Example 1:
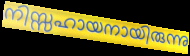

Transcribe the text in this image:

നിസ്സഹായനായിരുന്നു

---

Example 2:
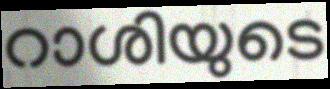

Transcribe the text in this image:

റാശിയുടെ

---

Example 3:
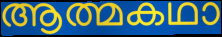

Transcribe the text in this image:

ആത്മകഥാ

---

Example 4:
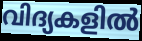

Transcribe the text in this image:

വിദ്യകളിൽ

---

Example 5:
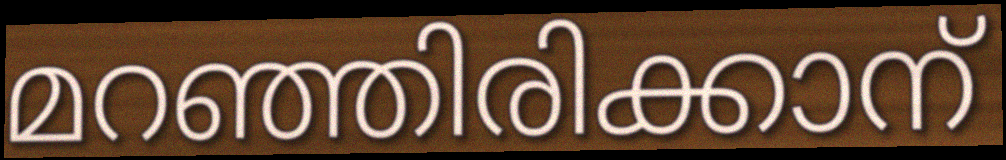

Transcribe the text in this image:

മറഞ്ഞിരിക്കാന്